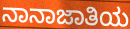
ನಾನಾಜಾತಿಯ